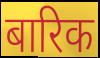
बारिक